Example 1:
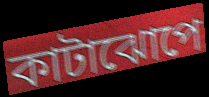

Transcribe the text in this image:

কাটাঝোপে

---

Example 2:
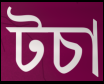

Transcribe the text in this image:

টচা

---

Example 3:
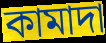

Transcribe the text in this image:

কামাদা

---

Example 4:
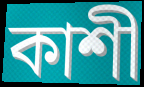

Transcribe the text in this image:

কাশী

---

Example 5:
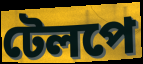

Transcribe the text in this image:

টেলপে